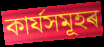
কাৰ্যসমূহৰ